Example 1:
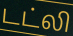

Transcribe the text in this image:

டட்லி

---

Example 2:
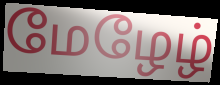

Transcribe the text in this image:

மேழேழ்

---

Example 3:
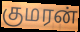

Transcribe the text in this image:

குமரன்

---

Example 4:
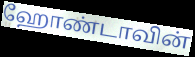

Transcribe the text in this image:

ஹோண்டாவின்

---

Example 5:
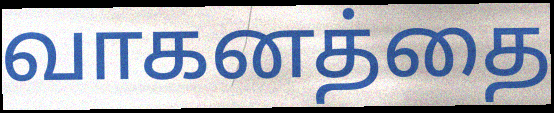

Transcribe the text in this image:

வாகனத்தை